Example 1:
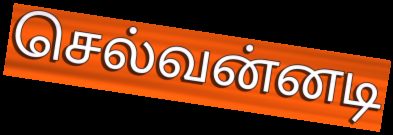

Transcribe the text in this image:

செல்வன்னடி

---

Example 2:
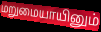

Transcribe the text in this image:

மறுமையாயினும்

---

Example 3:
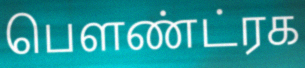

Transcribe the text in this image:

பௌண்ட்ரக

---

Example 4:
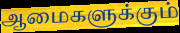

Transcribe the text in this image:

ஆமைகளுக்கும்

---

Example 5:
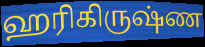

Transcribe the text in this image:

ஹரிகிருஷ்ண